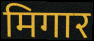
मिगार